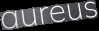
aureus